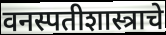
वनस्पतीशास्त्राचे